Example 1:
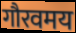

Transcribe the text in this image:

गौरवमय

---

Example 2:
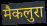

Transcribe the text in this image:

मैकलुरा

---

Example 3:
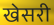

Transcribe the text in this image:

खेसरी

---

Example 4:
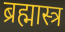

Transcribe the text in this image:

ब्रह्मास्त्र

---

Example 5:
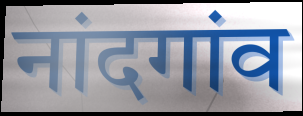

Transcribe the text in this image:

नांदगांव